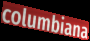
columbiana